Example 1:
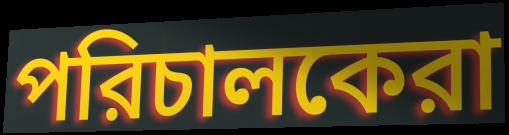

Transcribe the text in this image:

পরিচালকেরা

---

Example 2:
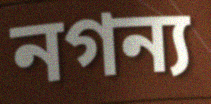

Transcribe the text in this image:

নগন্য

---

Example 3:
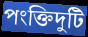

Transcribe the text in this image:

পংক্তিদুটি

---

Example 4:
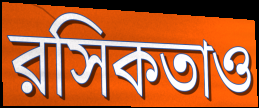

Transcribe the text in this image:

রসিকতাও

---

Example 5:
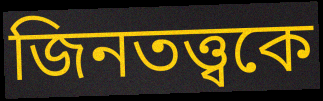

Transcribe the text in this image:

জিনতত্ত্বকে